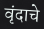
वृंदाचे